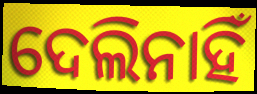
ଦେଲିନାହିଁ